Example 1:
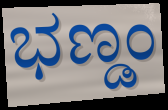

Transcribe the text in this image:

ಭಣ್ಡಂ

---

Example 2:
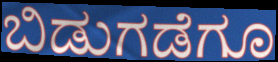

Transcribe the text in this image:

ಬಿಡುಗಡೆಗೂ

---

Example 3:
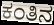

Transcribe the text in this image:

ಕಂತಿನ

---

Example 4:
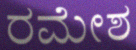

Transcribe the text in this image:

ರಮೇಶ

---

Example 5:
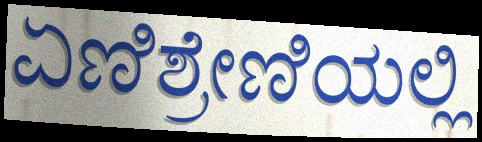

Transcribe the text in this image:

ಏಣಿಶ್ರೇಣಿಯಲ್ಲಿ